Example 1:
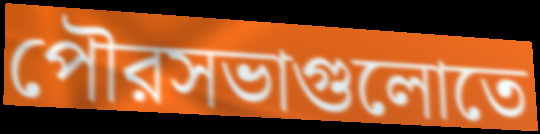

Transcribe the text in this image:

পৌরসভাগুলোতে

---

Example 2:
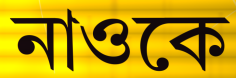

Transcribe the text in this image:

নাওকে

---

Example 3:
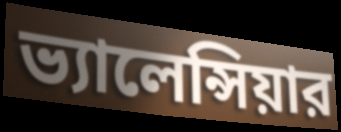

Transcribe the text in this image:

ভ্যালেন্সিয়ার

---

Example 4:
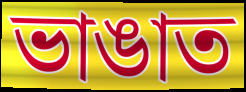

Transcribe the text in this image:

ভাঙাত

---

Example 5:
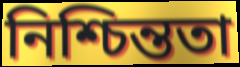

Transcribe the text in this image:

নিশ্চিন্ততা